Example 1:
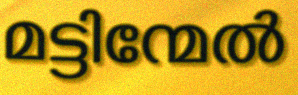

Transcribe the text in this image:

മട്ടിന്മേൽ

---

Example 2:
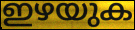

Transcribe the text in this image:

ഇഴയുക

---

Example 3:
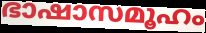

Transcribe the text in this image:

ഭാഷാസമൂഹം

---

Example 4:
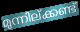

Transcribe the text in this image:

മുന്നില്ക്കണ്ട്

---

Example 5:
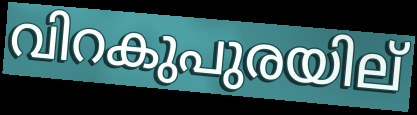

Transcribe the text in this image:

വിറകുപുരയില്